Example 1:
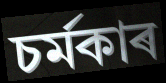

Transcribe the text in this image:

চৰ্মকাৰ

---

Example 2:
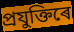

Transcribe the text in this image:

প্ৰযুক্তিৰে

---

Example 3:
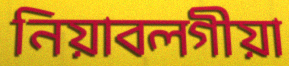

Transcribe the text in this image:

নিয়াবলগীয়া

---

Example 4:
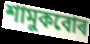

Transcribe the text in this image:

শামুকবোৰ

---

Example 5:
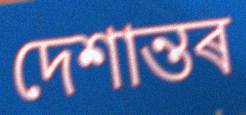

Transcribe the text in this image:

দেশান্তৰ